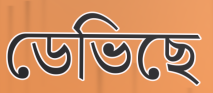
ডেভিছে